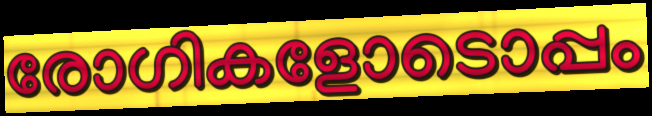
രോഗികളോടൊപ്പം